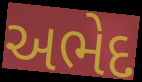
અભેદ